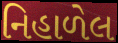
નિહાળેલ